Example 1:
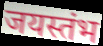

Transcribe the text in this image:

जयस्तंभ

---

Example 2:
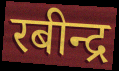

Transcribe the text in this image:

रबीन्द्र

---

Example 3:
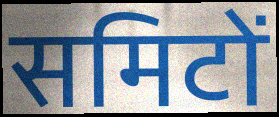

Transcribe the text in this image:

समिटों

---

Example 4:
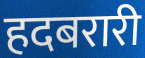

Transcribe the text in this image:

हदबरारी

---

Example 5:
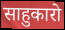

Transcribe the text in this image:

साहुकारो